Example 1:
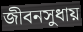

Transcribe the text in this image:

জীবনসুধায়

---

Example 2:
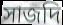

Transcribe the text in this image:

সাজদি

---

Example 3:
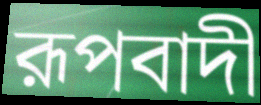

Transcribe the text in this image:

রূপবাদী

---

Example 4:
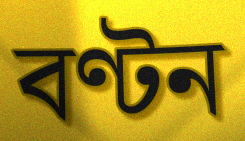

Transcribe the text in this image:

বণ্টন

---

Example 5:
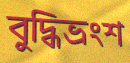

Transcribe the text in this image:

বুদ্ধিভ্রংশ